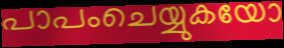
പാപംചെയ്യുകയോ